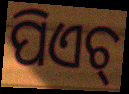
ପିଏଚ୍